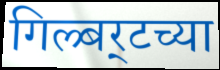
गिल्बर्टच्या